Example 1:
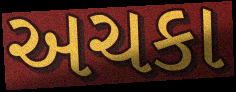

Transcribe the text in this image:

અચકા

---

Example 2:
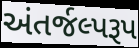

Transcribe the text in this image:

અંતર્જલ્પરૂપ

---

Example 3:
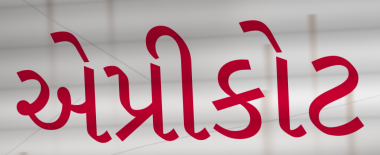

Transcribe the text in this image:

એપ્રીકોટ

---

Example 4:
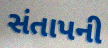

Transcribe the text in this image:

સંતાપની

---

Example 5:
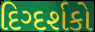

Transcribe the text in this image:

દિગ્દર્શકો